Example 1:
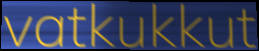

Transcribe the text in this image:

vatkukkut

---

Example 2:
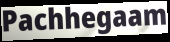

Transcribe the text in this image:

Pachhegaam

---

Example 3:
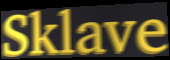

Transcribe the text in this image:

Sklave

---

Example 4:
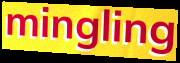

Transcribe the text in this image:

mingling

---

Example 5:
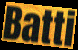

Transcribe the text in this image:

Batti